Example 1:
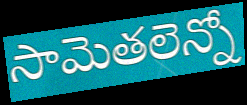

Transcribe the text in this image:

సామెతలెన్నో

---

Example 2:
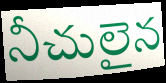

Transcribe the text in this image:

నీచులైన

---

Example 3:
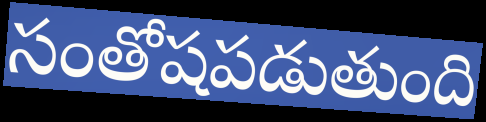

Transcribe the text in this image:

సంతోషపడుతుంది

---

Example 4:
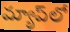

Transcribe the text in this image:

మ్యాప్‌లో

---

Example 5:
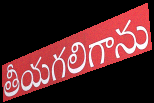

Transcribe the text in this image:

తీయగలిగాను